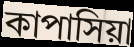
কাপাসিয়া